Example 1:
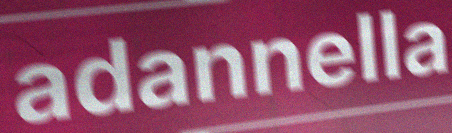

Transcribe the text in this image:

adannella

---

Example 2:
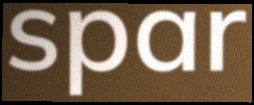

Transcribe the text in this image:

spar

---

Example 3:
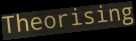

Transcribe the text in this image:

Theorising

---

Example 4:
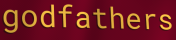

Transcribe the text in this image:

godfathers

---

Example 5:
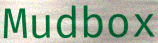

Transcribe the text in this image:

Mudbox